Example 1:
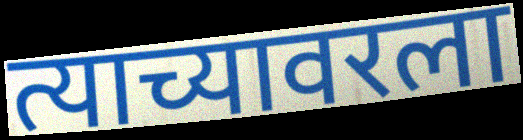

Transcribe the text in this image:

त्याच्यावरला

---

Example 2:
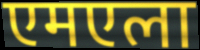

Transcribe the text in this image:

एमएला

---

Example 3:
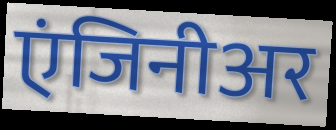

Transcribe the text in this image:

एंजिनीअर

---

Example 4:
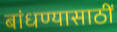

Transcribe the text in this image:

बांधण्यासाठीं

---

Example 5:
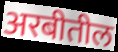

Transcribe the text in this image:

अरबीतील